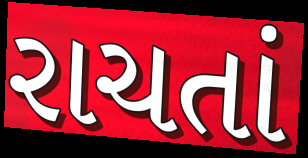
રાચતાં